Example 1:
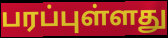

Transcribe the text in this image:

பரப்புள்ளது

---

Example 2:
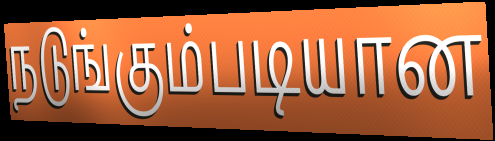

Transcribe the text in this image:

நடுங்கும்படியான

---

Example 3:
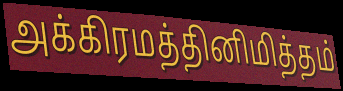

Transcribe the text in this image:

அக்கிரமத்தினிமித்தம்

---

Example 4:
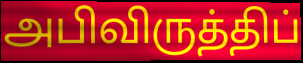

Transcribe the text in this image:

அபிவிருத்திப்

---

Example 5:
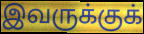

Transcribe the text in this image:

இவருக்குக்